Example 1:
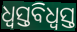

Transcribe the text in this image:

ଧ୍ୱସ୍ତବିଧ୍ୱସ୍ତ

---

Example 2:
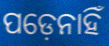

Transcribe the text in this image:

ପଡ଼େନାହିଁ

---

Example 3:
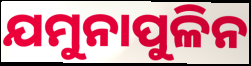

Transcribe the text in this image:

ଯମୁନାପୁଳିନ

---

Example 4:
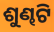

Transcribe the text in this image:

ଶୁଣ୍ଢଟି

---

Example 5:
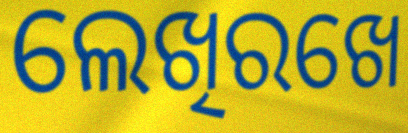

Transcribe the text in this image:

ଲେଖିରଖେ